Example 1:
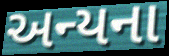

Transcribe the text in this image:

અન્યના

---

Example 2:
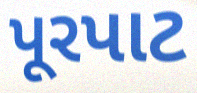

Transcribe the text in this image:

પૂરપાટ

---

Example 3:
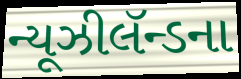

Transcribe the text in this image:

ન્યૂઝીલૅન્ડના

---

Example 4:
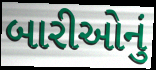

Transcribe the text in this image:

બારીઓનું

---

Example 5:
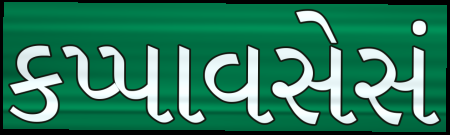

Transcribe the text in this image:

કપ્પાવસેસં